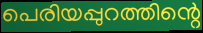
പെരിയപ്പുറത്തിന്റെ